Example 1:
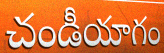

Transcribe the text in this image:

చండీయాగం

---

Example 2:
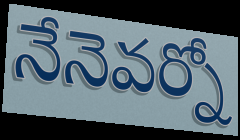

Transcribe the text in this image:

నేనెవర్నో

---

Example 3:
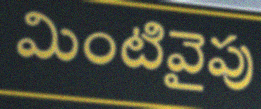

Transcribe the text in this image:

మింటివైపు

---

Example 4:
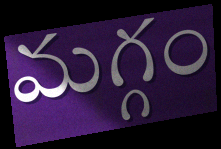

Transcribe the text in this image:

మగ్గం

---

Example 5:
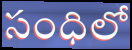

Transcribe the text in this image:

సంధిలో